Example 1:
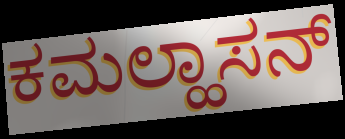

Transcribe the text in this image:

ಕಮಲ್ಹಾಸನ್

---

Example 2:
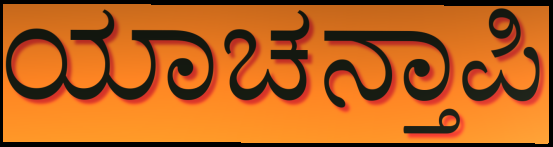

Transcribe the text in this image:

ಯಾಚನ್ತಾಪಿ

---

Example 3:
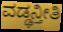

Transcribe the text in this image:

ವಡ್ಢನ್ತೀತಿ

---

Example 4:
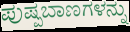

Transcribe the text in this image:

ಪುಷ್ಪಬಾಣಗಳನ್ನು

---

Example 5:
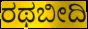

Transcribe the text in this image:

ರಥಬೀದಿ